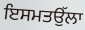
ਇਸਮਤਉੱਲਾ